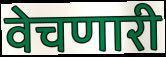
वेचणारी